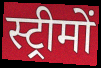
स्ट्रीमों